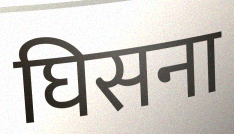
घिसना